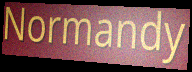
Normandy